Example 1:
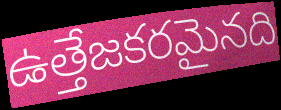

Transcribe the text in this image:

ఉత్తేజకరమైనది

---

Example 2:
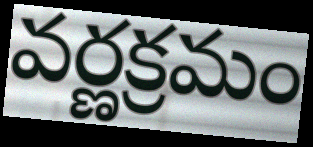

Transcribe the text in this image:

వర్ణక్రమం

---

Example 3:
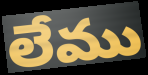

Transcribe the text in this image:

లేము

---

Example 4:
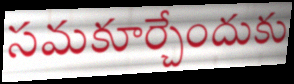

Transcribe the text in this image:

సమకూర్చేందుకు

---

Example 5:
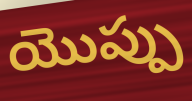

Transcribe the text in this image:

యొప్పు